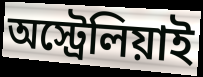
অস্ট্রেলিয়াই